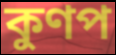
কুণপ